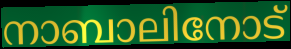
നാബാലിനോട്